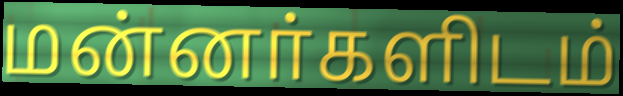
மன்னர்களிடம்